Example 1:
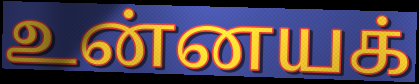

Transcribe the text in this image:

உன்னயக்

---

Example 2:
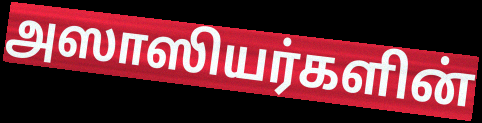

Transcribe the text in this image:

அஸாஸியர்களின்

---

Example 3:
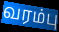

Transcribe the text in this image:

வரம்பு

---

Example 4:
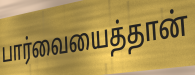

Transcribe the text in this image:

பார்வையைத்தான்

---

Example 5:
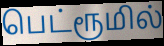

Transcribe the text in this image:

பெட்ரூமில்